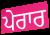
ਪੇਰਾਰ